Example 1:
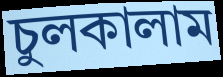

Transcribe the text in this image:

চুলকালাম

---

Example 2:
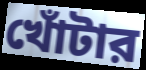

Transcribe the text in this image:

খোঁটার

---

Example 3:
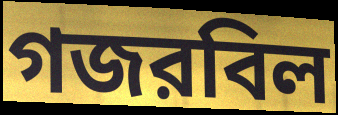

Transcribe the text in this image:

গজরবিল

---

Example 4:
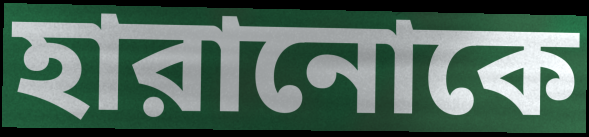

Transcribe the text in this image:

হারানোকে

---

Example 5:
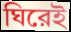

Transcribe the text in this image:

ঘিরেই